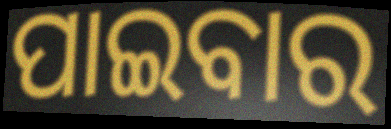
ପାଇବାର